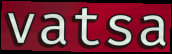
vatsa